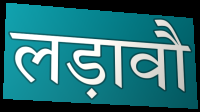
लड़ावौ